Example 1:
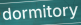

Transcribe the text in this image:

dormitory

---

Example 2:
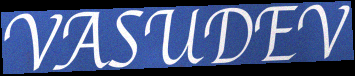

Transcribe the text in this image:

VASUDEV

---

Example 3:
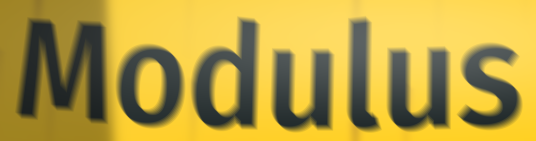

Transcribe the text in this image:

Modulus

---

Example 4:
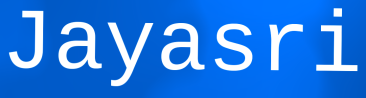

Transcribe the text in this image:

Jayasri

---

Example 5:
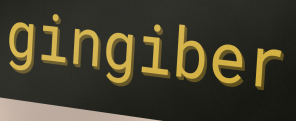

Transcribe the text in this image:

gingiber